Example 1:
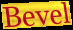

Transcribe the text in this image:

Bevel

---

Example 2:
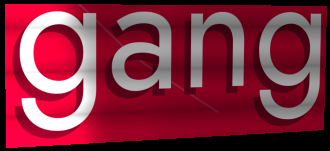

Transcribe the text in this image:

gang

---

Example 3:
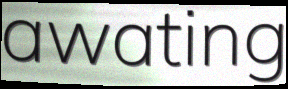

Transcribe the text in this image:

awating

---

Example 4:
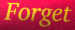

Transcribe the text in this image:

Forget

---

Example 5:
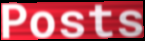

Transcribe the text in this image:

Posts